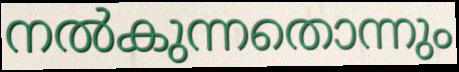
നൽകുന്നതൊന്നും